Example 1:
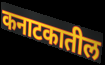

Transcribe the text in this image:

कनाटकातील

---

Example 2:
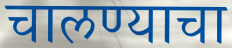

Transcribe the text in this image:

चालण्याचा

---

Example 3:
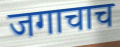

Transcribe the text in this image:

जगाचाच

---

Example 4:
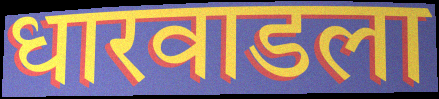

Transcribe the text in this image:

धारवाडला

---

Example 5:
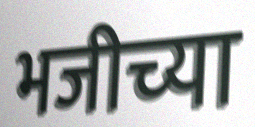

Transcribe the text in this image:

भजीच्या